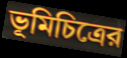
ভূমিচিত্রের